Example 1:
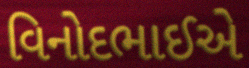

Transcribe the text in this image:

વિનોદભાઈએ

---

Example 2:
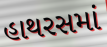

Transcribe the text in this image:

હાથરસમાં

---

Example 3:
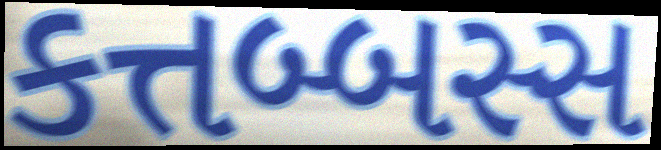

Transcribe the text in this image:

કત્તબ્બસ્સ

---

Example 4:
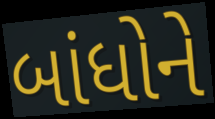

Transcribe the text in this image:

બાંધોને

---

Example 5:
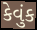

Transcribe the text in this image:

કેવુંક